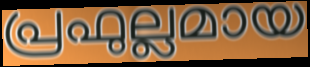
പ്രഫുല്ലമായ